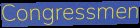
Congressmen